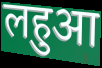
लहुआ